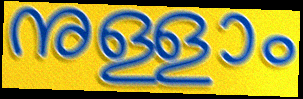
നുള്ളാം